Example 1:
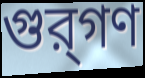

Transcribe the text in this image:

গুর্‌গণ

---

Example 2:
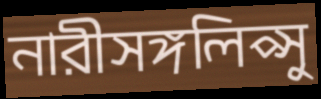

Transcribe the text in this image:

নারীসঙ্গলিপ্সু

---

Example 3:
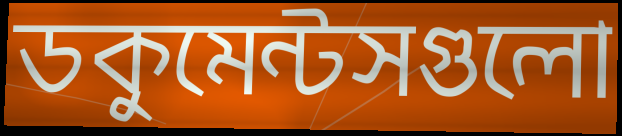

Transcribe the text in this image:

ডকুমেন্টসগুলো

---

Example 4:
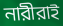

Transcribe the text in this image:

নারীরাই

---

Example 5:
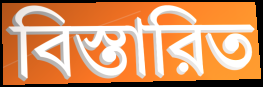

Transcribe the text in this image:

বিস্তারিত